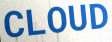
CLOUD